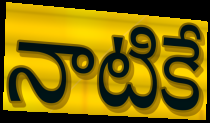
నాటికే